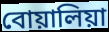
বোয়ালিয়া